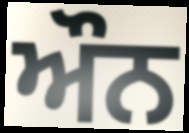
ਔਨ